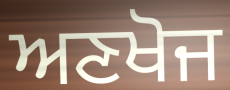
ਅਣਖੋਜ